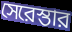
সেরেস্তার